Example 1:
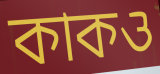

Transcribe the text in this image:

কাকও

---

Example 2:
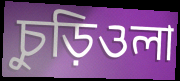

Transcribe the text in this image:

চুড়িওলা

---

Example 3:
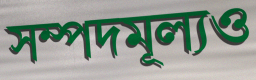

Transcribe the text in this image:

সম্পদমূল্যও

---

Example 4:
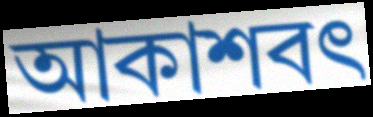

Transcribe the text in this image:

আকাশবৎ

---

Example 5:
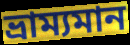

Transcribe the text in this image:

ভ্রাম্যমান